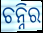
ଚନ୍ନିର